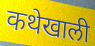
कथेखाली